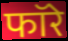
फॉरे